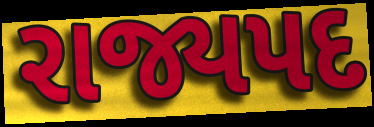
રાજ્યપદ